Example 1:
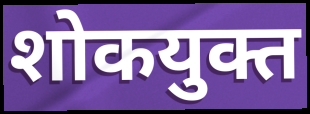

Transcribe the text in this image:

शोकयुक्त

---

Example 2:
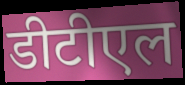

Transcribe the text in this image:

डीटीएल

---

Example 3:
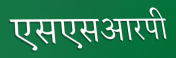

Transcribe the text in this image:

एसएसआरपी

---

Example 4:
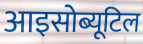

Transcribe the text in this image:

आइसोब्यूटिल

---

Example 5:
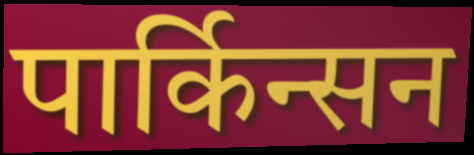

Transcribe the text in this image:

पार्किन्सन